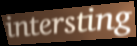
intersting